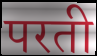
परती